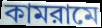
কামরামে